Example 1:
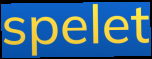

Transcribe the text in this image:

spelet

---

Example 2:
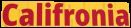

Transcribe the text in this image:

Califronia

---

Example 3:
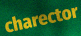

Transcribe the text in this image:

charector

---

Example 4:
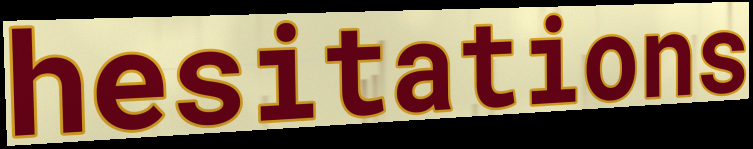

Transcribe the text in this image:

hesitations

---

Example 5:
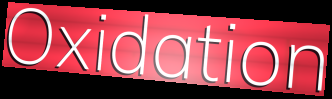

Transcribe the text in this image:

Oxidation